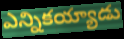
ఎన్నికయ్యాడు